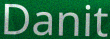
Danit